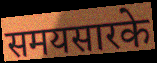
समयसारके